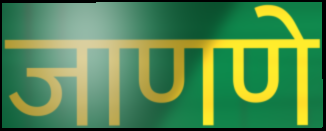
जाणणे